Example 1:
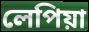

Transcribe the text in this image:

লেপিয়া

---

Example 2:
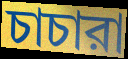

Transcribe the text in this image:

চাচারা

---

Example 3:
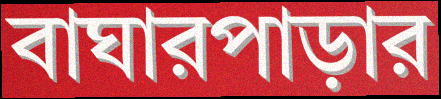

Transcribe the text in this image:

বাঘারপাড়ার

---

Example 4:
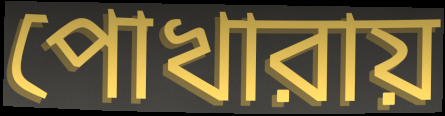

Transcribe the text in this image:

পোখারায়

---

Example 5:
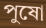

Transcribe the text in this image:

পুষো